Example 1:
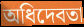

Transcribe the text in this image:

অধিদেবতা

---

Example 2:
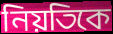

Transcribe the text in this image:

নিয়তিকে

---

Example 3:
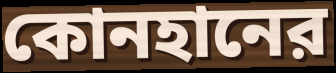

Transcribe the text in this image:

কোনহানের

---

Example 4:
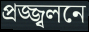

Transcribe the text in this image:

প্রজ্জ্বলনে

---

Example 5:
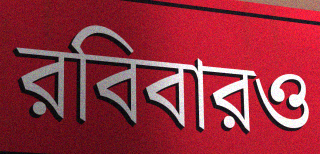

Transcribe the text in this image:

রবিবারও